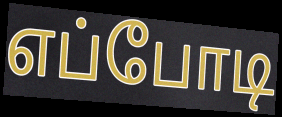
எப்போடி